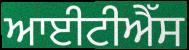
ਆਈਟੀਐੱਸ